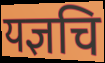
यज्ञचि